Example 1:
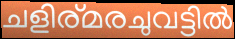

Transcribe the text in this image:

ചളിര്മരചുവട്ടിൽ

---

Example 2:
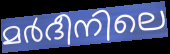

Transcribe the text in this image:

മർദീനിലെ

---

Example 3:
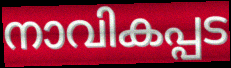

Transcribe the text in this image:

നാവികപ്പട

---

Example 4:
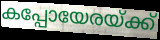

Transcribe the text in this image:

കപ്പോയേരയ്ക്ക്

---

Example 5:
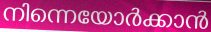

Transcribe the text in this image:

നിന്നെയോർക്കാൻ